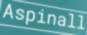
Aspinall